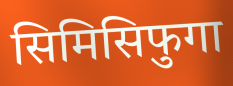
सिमिसिफुगा